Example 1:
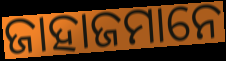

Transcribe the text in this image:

ଜାହାଜମାନେ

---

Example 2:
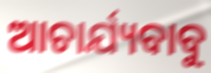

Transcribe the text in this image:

ଆଚାର୍ଯ୍ୟବାବୁ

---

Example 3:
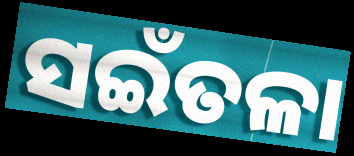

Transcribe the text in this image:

ସଇଁତଳା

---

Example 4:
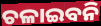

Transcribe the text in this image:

ଚଳାଇବନି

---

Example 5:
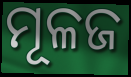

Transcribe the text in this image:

ମୂଳଜ